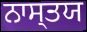
ਨਾਸ੍ਤਯ